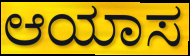
ಆಯಾಸ